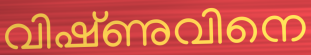
വിഷ്‌ണുവിനെ